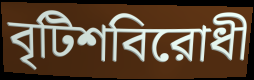
বৃটিশবিরোধী